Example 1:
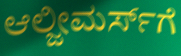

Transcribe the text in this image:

ಆಲ್ಜೀಮರ್ಸ್‌ಗೆ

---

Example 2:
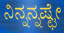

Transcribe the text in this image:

ನಿನ್ನನ್ನಷ್ಟೇ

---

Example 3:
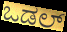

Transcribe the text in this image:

ಒಡಲ್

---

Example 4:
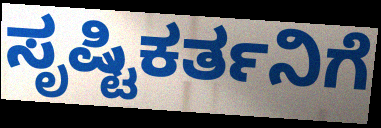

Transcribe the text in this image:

ಸೃಷ್ಟಿಕರ್ತನಿಗೆ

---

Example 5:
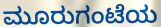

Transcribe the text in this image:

ಮೂರುಗಂಟೆಯ